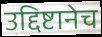
उद्दिष्टानेच